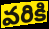
వరికి